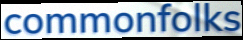
commonfolks